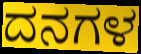
ದನಗಳ